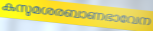
കുസുമശരബാണഭാവേന